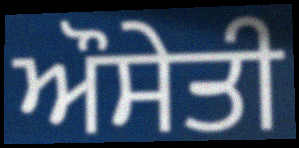
ਔਸੇਤੀ